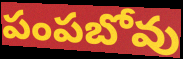
పంపబోవు